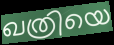
ഖത്രിയെ